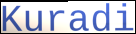
Kuradi